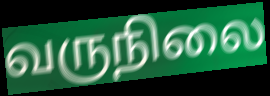
வருநிலை